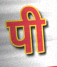
पी